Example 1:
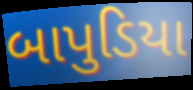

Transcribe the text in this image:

બાપુડિયા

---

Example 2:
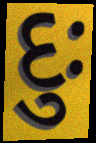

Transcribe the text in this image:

દુઃ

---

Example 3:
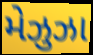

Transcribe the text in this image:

મેઝુઝા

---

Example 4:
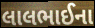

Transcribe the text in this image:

લાલભાઈના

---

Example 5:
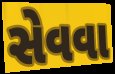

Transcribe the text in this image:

સેવવા